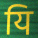
यि